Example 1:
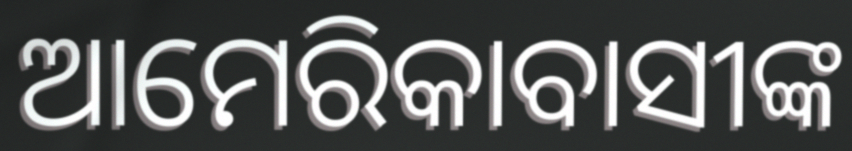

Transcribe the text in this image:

ଆମେରିକାବାସୀଙ୍କ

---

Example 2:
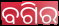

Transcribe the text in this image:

ବଗିର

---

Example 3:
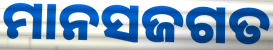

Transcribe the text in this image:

ମାନସଜଗତ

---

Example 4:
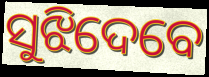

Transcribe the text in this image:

ସୁଝିଦେବେ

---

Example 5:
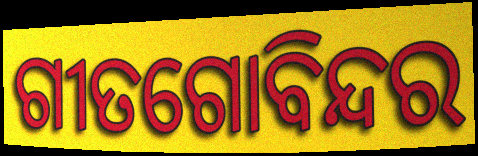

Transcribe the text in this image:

ଗୀତଗୋବିନ୍ଦର